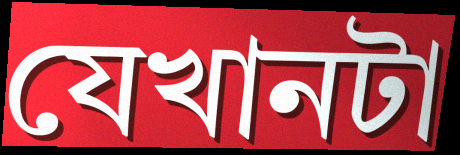
যেখানটা